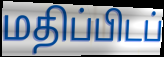
மதிப்பிடப்